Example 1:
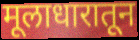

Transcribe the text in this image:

मूलाधारातून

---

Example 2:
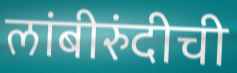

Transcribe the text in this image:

लांबीरुंदीची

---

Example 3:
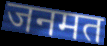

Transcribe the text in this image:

जनमत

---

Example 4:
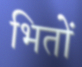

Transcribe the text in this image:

भितों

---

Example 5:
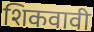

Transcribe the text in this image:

शिकवावी